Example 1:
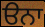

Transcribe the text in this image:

ੳਨਾ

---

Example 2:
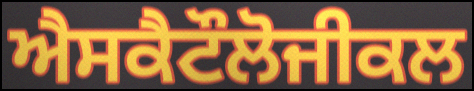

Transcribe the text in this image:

ਐਸਕੈਟੌਲੋਜੀਕਲ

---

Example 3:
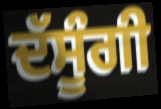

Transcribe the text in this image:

ਦੱਸੂੰਗੀ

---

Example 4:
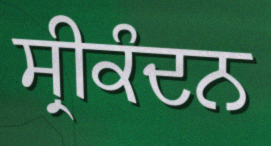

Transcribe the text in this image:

ਸ੍ਰੀਕੰਦਨ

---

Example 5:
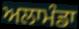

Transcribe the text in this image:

ਅਲਾਮੰਡਾ